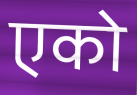
एको